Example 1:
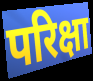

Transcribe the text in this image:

परिक्षा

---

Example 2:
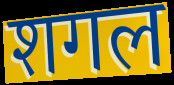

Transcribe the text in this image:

शगल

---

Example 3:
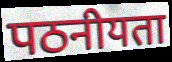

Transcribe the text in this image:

पठनीयता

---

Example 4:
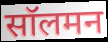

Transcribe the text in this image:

सॉलमन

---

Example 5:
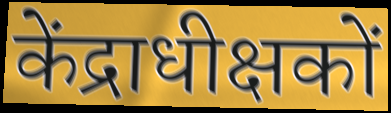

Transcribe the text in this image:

केंद्राधीक्षकों